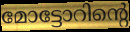
മോട്ടോറിന്റെ